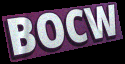
BOCW